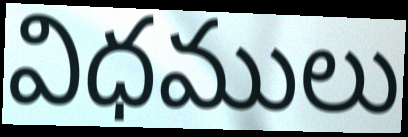
విధములు